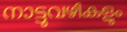
നാട്ടുവഴികളും